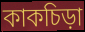
কাকচিড়া